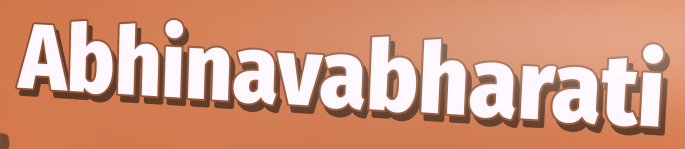
Abhinavabharati